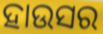
ହାଉସର